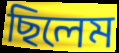
ছিলেম